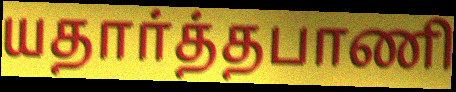
யதார்த்தபாணி